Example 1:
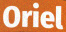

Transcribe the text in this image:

Oriel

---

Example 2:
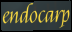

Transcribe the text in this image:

endocarp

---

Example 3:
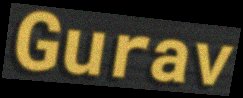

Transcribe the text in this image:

Gurav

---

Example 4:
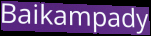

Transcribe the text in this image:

Baikampady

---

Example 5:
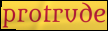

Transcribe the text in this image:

protrude